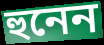
হুনেন